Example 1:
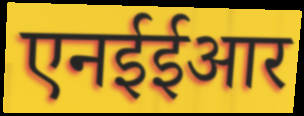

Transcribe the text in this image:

एनईईआर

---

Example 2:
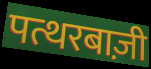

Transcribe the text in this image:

पत्थरबाज़ी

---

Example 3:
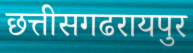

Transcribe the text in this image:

छत्तीसगढरायपुर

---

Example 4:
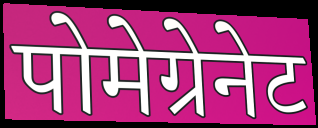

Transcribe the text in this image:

पोमेग्रेनेट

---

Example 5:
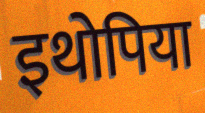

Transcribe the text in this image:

इथोपिया